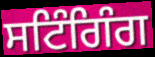
ਸਟਿੰਗਿੰਗ